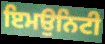
ਇਮਉਨਿਟੀ